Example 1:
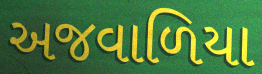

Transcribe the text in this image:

અજવાળિયા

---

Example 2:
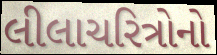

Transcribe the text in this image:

લીલાચરિત્રોનો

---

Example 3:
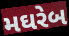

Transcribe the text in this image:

મઘરેબ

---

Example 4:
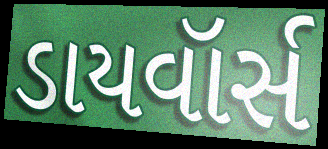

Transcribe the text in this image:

ડાયવૉર્સ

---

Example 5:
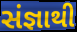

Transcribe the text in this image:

સંજ્ઞાથી